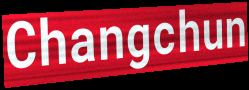
Changchun